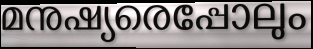
മനുഷ്യരെപ്പോലും